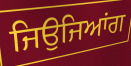
ਜਿਉਜਿਆਂਗ